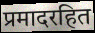
प्रमादरहित